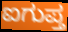
ಐಗುಪ್ತ